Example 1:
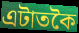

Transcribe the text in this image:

এটাতকৈ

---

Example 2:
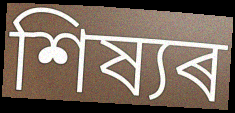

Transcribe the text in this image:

শিষ্যৰ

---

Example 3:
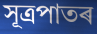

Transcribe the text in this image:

সূত্ৰপাতৰ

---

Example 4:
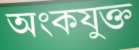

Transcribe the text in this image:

অংকযুক্ত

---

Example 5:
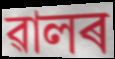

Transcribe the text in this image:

ৱালৰ